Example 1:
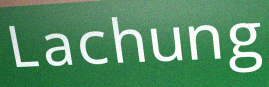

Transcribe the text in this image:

Lachung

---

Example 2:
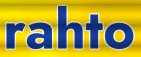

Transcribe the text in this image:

rahto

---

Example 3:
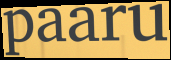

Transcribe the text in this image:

paaru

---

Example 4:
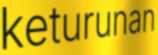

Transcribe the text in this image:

keturunan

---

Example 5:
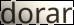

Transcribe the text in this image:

dorar